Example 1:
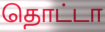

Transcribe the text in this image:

தொட்டா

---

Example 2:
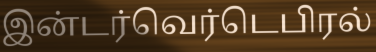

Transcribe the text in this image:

இன்டர்வெர்டெபிரல்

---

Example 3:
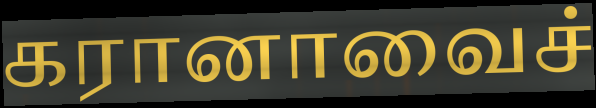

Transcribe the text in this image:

கரானாவைச்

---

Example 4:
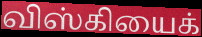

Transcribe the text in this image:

விஸ்கியைக்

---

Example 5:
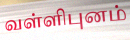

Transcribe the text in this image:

வள்ளிபுனம்